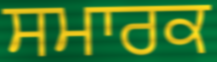
ਸਮਾਰਕ